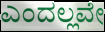
ಎಂದಲ್ಲವೇ